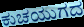
ಕುಚಯುಗದ